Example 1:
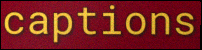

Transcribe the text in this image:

captions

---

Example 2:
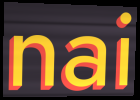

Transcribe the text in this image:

nai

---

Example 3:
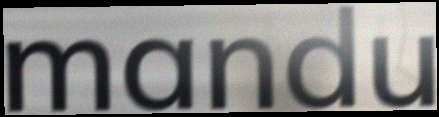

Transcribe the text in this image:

mandu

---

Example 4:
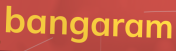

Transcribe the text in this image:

bangaram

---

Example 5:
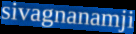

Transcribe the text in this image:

sivagnanamji